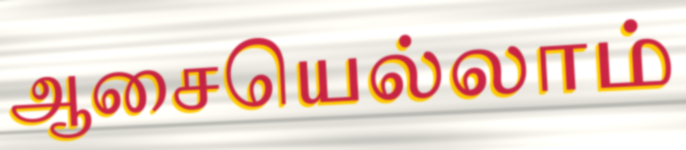
ஆசையெல்லாம்